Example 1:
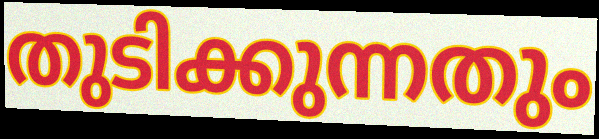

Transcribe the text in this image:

തുടിക്കുന്നതും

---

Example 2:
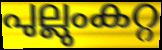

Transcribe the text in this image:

പുല്ലുംകറ്റ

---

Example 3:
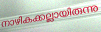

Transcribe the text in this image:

നാഴികക്കല്ലായിരുന്നു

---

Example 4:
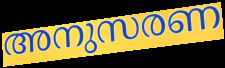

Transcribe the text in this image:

അനുസരണ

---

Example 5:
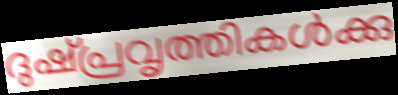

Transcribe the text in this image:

ദുഷ്പ്രവൃത്തികൾക്കു